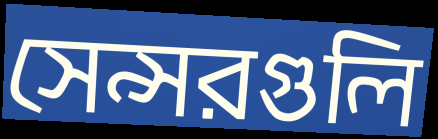
সেন্সরগুলি